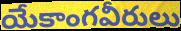
యేకాంగవీరులు